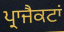
ਪ੍ਰਾਜੈਕਟਾਂ